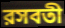
রসবতী